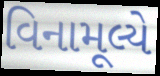
વિનામૂલ્યે